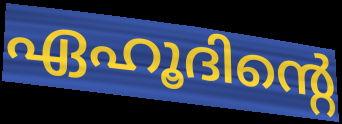
ഏഹൂദിന്റെ